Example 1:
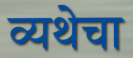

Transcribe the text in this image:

व्यथेचा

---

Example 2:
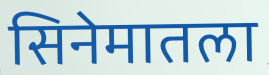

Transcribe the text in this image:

सिनेमातला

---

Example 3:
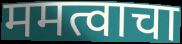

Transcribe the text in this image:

ममत्वाचा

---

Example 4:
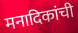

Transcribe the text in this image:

मनादिकांची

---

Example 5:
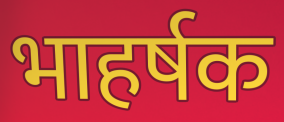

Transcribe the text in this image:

भाहर्षक